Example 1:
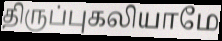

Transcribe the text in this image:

திருப்புகலியாமே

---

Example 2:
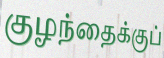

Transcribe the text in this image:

குழந்தைக்குப்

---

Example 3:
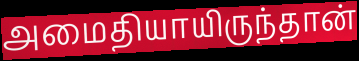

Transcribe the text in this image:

அமைதியாயிருந்தான்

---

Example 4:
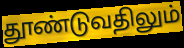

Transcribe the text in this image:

தூண்டுவதிலும்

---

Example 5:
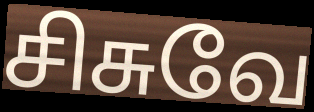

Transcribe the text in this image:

சிசுவே